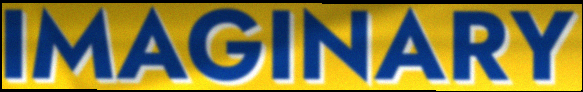
IMAGINARY